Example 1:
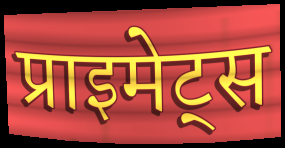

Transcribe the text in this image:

प्राइमेट्स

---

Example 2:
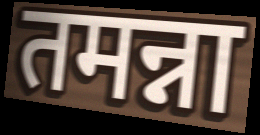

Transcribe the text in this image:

तमन्ना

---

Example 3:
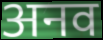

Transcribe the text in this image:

अनव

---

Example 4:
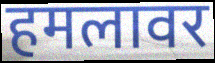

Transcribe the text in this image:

हमलावर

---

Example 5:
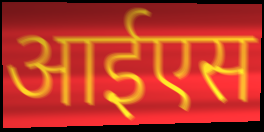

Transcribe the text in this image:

आईएस